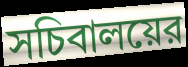
সচিবালয়ের